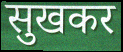
सुखकर